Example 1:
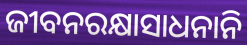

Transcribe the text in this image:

ଜୀବନରକ୍ଷାସାଧନାନି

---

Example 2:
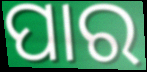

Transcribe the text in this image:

ପାର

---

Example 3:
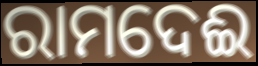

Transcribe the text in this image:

ରାମଦେଈ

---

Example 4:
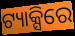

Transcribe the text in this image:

ଟ୍ୟାକ୍ସିରେ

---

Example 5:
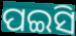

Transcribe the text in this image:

ପଇସି